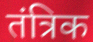
तंत्रिक